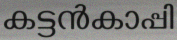
കട്ടൻകാപ്പി